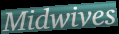
Midwives